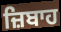
ਜ਼ਿਬਾਹ